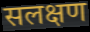
सलक्षण